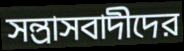
সন্ত্রাসবাদীদের